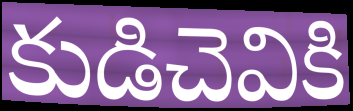
కుడిచెవికి